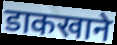
डाकखाने